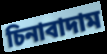
চিনাবাদাম